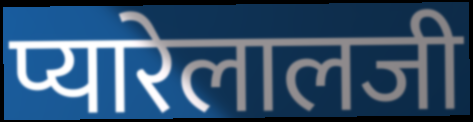
प्यारेलालजी